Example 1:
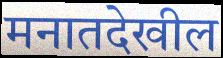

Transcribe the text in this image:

मनातदेखील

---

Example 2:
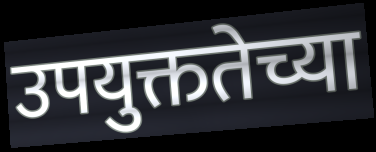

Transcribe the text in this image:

उपयुक्ततेच्या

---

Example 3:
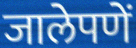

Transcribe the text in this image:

जालेपणें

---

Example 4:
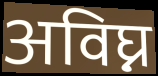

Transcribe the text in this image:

अविघ्न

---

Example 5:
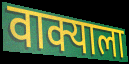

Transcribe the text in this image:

वाक्याला